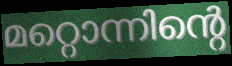
മറ്റൊന്നിന്റെ